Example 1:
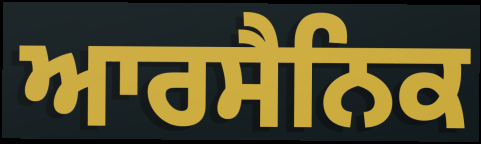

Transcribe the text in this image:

ਆਰਸੈਨਿਕ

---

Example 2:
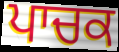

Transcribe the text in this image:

ਪਾਚਕ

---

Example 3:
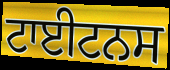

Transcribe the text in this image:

ਟਾਈਟਨਸ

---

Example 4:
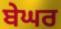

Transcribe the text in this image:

ਬੇਘਰ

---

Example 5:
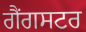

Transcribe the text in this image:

ਗੈਂਗਸਟਰ